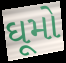
ઘૂમો